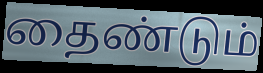
தைண்டும்